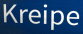
Kreipe